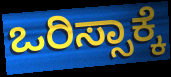
ಒರಿಸ್ಸಾಕ್ಕೆ